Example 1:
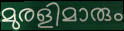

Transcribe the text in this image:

മുരളിമാരും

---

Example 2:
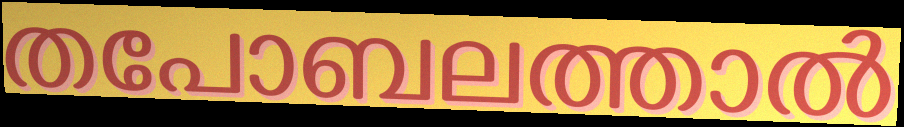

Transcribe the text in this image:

തപോബലത്താൽ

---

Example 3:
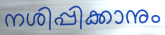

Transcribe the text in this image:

നശിപ്പിക്കാനും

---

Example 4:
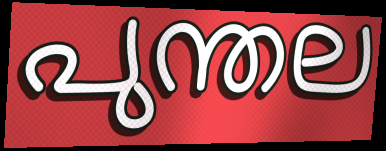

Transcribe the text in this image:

പുന്തല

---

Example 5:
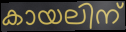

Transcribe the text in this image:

കായലിന്